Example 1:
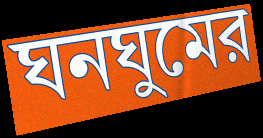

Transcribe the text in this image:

ঘনঘুমের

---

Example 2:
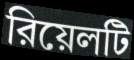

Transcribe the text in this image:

রিয়েলটি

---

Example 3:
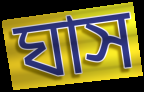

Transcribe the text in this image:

ঘাস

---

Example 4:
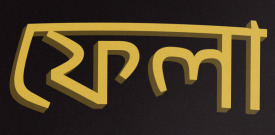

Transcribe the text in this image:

ফেলা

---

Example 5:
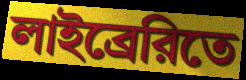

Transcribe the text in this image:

লাইব্রেরিতে